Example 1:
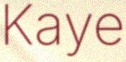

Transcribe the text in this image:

Kaye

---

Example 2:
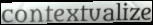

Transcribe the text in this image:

contextualize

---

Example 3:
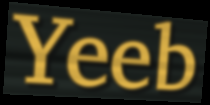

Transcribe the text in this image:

Yeeb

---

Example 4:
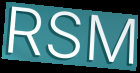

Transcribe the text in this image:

RSM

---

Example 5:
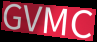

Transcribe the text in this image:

GVMC